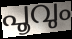
പൂവും